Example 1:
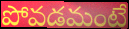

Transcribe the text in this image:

పోవడమంటే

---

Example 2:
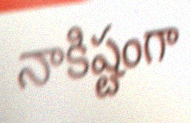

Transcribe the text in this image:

నాకిష్టంగా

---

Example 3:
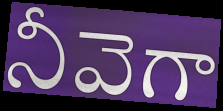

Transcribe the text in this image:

నీవెగా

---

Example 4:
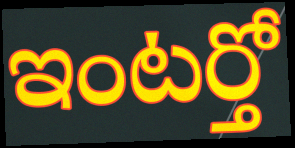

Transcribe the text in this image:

ఇంటర్తో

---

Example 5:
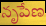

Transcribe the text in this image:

నృపేణ